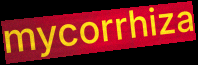
mycorrhiza